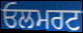
ਓਲਮਰਟ